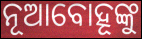
ନୂଆବୋହୂଙ୍କୁ